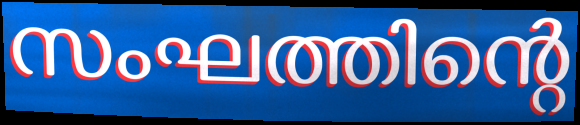
സംഘത്തിന്റെ